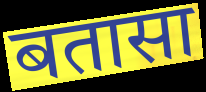
बतासा